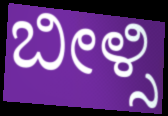
ಬೀಳ್ಸಿ